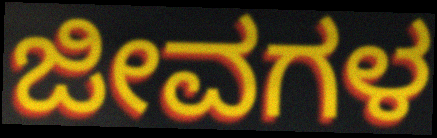
ಜೀವಗಳ